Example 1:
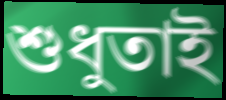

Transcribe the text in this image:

শুধুতাই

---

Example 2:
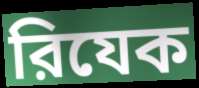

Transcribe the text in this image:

রিযেক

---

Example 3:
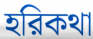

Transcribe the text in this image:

হরিকথা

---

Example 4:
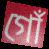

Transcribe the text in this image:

গোঁ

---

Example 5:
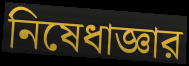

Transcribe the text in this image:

নিষেধাজ্ঞার